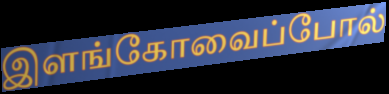
இளங்கோவைப்போல்